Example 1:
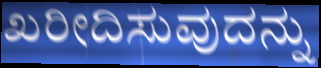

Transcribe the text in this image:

ಖರೀದಿಸುವುದನ್ನು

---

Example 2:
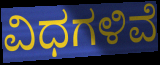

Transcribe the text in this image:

ವಿಧಗಳಿವೆ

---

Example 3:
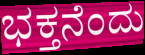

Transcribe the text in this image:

ಭಕ್ತನೆಂದು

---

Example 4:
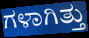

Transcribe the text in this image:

ಗಳಾಗಿತ್ತು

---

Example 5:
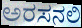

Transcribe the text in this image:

ಅರಸನಲಿ